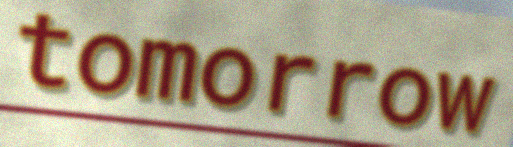
tomorrow